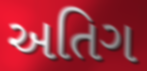
અતિગ